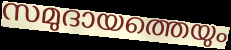
സമുദായത്തെയും